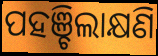
ପହଞ୍ଚିଲାକ୍ଷଣି